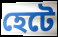
হেটে